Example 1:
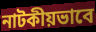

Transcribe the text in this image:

নাটকীয়ভাবে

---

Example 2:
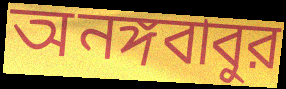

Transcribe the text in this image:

অনঙ্গবাবুর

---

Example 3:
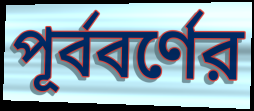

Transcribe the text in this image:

পূর্ববর্ণের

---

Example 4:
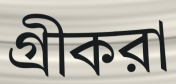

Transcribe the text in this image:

গ্রীকরা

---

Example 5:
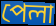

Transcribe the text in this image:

পেলা